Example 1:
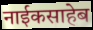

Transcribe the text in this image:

नाईकसाहेब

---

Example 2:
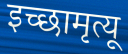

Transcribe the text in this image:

इच्छामृत्यू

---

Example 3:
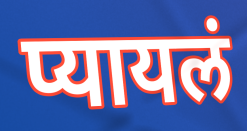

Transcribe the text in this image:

प्यायलं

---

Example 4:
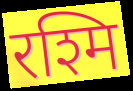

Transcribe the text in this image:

रश्मि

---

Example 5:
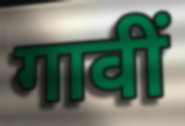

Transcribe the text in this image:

गावीं